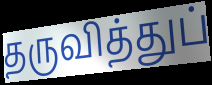
தருவித்துப்